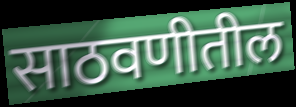
साठवणीतील